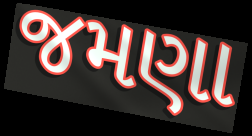
જમણા